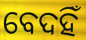
ବେଦହିଁ